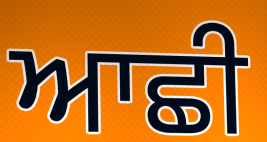
ਆਛੀ